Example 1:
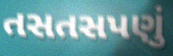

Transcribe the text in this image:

તસતસપણું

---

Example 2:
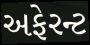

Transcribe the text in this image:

અફેરન્ટ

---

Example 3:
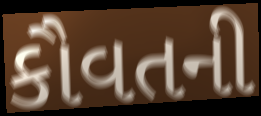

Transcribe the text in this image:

કૌવતની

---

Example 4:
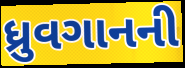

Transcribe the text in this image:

ધ્રુવગાનની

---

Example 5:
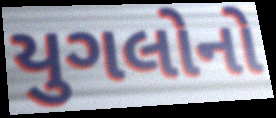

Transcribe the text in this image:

યુગલોનો